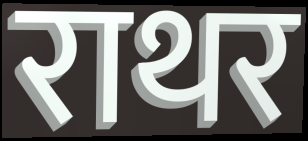
राथर